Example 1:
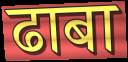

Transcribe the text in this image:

ढाबा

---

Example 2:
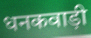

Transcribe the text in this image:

धनकवाड़ी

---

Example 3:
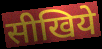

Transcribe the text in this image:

सीखिये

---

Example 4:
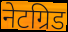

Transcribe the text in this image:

नेटग्रिड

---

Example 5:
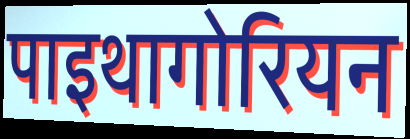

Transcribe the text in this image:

पाइथागोरियन